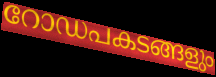
റോഡപകടങ്ങളും